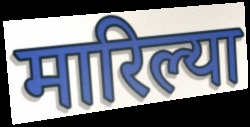
मारिल्या